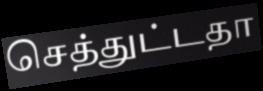
செத்துட்டதா